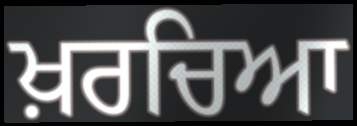
ਖ਼ਰਚਿਆ